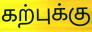
கற்புக்கு